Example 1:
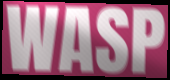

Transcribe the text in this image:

WASP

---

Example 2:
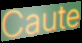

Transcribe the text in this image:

Caute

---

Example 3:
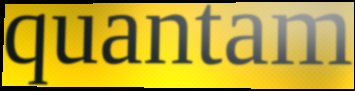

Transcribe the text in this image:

quantam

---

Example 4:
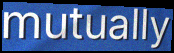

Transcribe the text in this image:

mutually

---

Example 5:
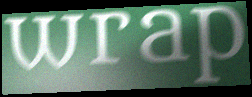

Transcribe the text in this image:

wrap